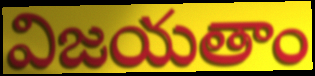
విజయతాం